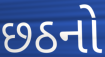
છઠનો